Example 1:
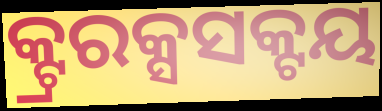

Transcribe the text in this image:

କ୍ଟ୍ରରକ୍ସସକ୍ଟୟ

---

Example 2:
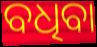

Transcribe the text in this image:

ବଧିବା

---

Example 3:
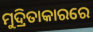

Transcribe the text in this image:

ମୁଦ୍ରିତାକାରରେ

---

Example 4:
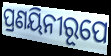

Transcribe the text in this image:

ପ୍ରଣୟିନୀରୂପେ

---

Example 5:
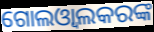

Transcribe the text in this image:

ଗୋଲଓ୍ଵାଲକରଙ୍କ